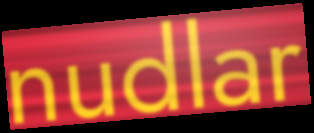
nudlar